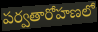
పర్వతారోహణలో